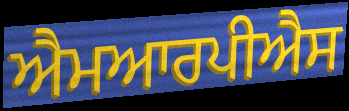
ਐਮਆਰਪੀਐਸ